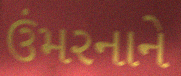
ઉંમરનાને